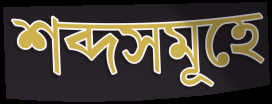
শব্দসমূহে